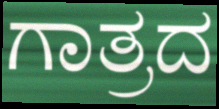
ಗಾತ್ರದ